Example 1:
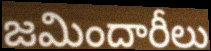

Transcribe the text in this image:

జమిందారీలు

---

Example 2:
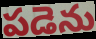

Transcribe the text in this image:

పడెను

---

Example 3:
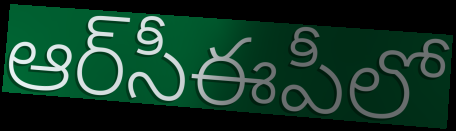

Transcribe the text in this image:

ఆర్‌సీఈపీలో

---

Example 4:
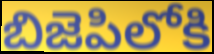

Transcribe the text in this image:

బిజెపిలోకి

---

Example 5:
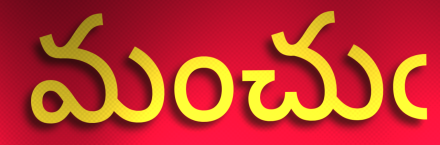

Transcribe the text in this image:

మంచుఁ